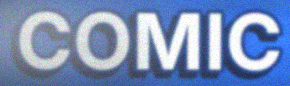
COMIC